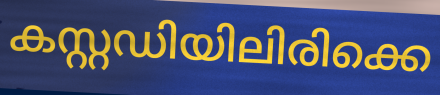
കസ്റ്റഡിയിലിരിക്കെ